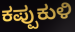
ಕಪ್ಪುಕುಳಿ